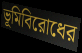
ভূমিবিরোধের